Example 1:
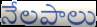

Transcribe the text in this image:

నేలపాలు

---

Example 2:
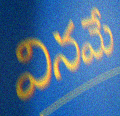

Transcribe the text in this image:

వినమే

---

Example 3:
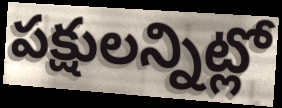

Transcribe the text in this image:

పక్షులన్నిట్లో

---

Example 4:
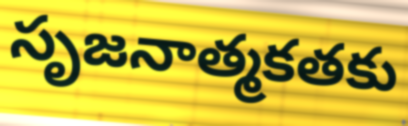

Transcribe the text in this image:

సృజనాత్మకతకు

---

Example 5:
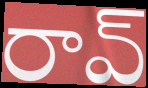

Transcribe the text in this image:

రావ్